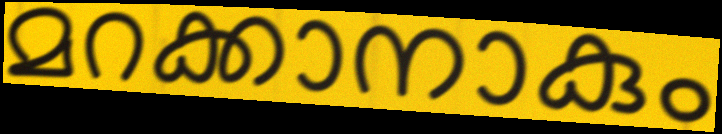
മറക്കാനാകും